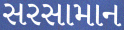
સરસામાન